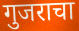
गुजराचा